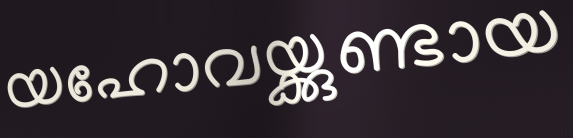
യഹോവയ്ക്കുണ്ടായ